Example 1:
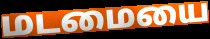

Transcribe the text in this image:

மடமையை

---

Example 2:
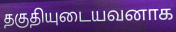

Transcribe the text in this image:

தகுதியுடையவனாக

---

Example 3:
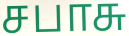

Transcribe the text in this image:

சபாசு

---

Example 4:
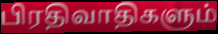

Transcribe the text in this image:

பிரதிவாதிகளும்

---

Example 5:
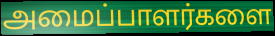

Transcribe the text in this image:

அமைப்பாளர்களை